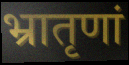
भ्रातृणां